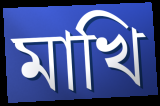
মাখি